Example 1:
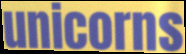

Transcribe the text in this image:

unicorns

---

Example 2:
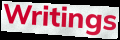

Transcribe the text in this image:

Writings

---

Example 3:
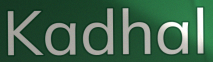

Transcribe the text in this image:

Kadhal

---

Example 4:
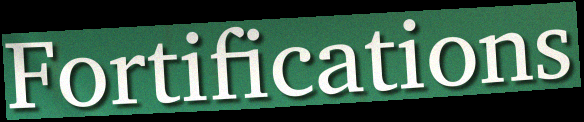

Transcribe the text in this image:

Fortifications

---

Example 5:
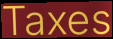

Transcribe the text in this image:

Taxes